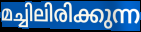
മച്ചിലിരിക്കുന്ന